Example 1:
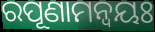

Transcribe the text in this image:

ରପୂଣାମନ୍ଵୟଃ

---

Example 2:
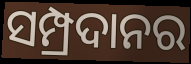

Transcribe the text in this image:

ସମ୍ପ୍ରଦାନର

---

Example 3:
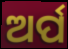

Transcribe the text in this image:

ଅର୍ପ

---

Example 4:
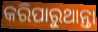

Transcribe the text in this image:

କରିପାରୁଥାନ୍ତା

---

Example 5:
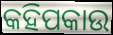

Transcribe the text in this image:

କହିପକାଉ